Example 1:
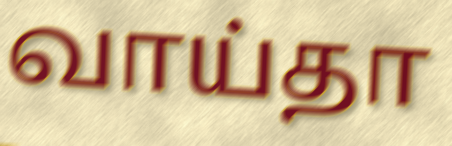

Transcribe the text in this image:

வாய்தா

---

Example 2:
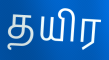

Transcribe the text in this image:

தயிர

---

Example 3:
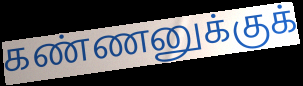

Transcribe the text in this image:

கண்ணனுக்குக்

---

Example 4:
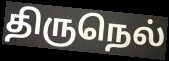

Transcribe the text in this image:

திருநெல்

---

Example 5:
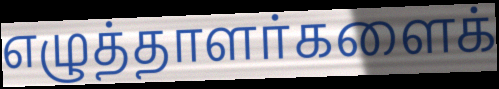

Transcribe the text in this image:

எழுத்தாளர்களைக்